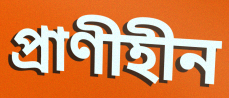
প্রাণীহীন